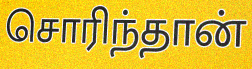
சொரிந்தான்